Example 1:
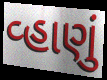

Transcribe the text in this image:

વ્હાણું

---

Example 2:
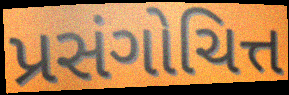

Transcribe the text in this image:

પ્રસંગોચિત્ત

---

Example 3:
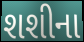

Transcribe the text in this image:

શશીના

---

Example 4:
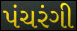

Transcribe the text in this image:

પંચરંગી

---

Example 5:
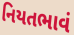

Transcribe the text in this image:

નિયતભાવં